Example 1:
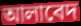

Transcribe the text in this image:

আলাবেদ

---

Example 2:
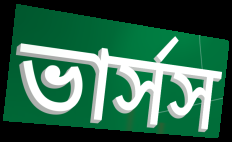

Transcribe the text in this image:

ভার্সস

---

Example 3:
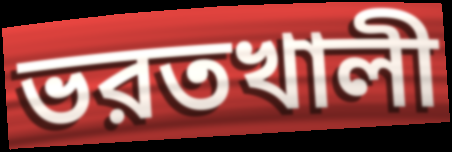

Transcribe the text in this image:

ভরতখালী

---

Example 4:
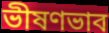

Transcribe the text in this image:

ভীষণভাব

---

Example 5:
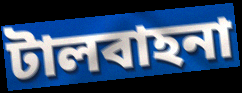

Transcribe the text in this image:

টালবাহনা